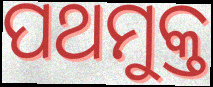
ପଥମୁକ୍ତ